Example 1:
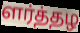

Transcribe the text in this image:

ளர்த்தழ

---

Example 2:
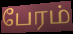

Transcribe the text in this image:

பேரம்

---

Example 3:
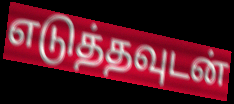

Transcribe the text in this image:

எடுத்தவுடன்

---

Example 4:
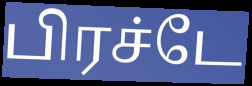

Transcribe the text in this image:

பிரச்டே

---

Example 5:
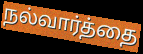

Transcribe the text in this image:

நல்வார்த்தை